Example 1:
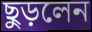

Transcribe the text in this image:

ছুড়লেন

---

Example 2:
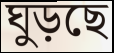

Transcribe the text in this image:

ঘুড়ছে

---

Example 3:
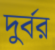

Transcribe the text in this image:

দুর্বর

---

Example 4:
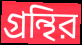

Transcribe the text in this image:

গ্রন্থির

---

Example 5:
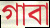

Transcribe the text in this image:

গাবা